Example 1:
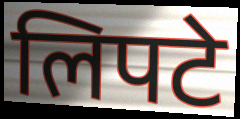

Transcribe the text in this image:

लिपटे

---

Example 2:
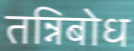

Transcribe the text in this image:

तन्निबोध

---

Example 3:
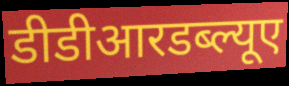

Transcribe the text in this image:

डीडीआरडब्ल्यूए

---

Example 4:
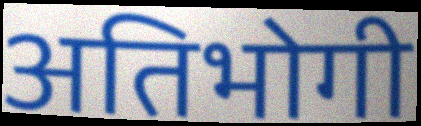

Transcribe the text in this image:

अतिभोगी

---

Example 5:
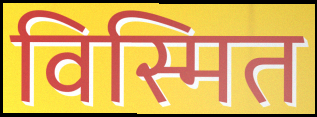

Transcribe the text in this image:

विस्मित